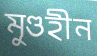
মুণ্ডহীন